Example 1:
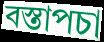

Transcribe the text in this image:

বস্তাপচা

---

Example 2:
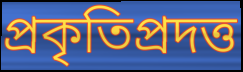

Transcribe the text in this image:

প্রকৃতিপ্রদত্ত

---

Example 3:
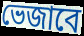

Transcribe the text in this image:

ভেজাবে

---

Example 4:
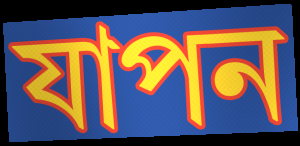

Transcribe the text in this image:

যাপন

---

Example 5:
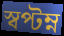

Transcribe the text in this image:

স্বপ্টম্ন